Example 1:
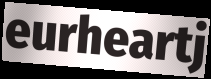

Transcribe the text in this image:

eurheartj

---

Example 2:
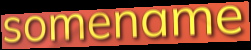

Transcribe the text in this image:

somename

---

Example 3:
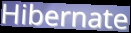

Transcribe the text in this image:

Hibernate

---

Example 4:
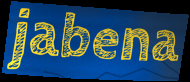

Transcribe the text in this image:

jabena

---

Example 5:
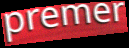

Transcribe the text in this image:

premer